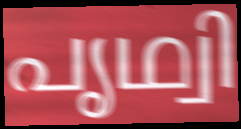
പൃഥ്വി